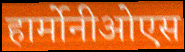
हार्मोनीओएस